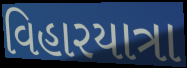
વિહારયાત્રા